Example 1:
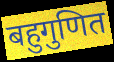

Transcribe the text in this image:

बहुगुणित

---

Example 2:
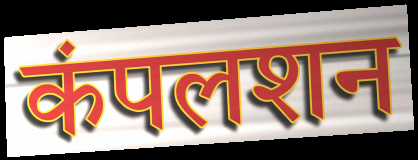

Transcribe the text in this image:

कंपलशन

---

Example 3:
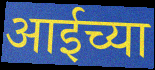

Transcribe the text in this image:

आईच्या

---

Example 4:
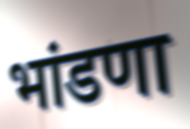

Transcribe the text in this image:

भांडणा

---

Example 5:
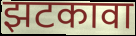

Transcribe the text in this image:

झटकावा